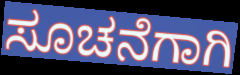
ಸೂಚನೆಗಾಗಿ